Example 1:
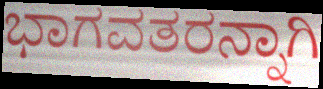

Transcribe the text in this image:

ಭಾಗವತರನ್ನಾಗಿ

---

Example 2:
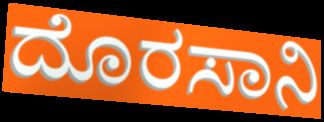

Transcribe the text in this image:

ದೊರಸಾನಿ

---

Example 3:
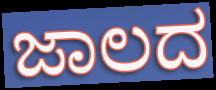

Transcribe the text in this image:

ಜಾಲದ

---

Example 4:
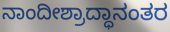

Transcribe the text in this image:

ನಾಂದೀಶ್ರಾದ್ಧಾನಂತರ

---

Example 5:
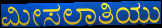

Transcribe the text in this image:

ಮೀಸಲಾತಿಯು